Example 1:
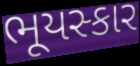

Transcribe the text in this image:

ભૂયસ્કાર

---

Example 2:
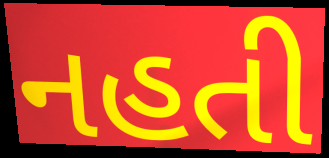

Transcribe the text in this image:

નહતી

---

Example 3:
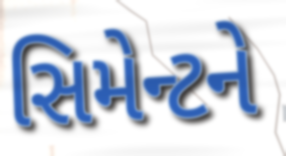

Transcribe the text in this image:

સિમેન્ટને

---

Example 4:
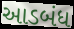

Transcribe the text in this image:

આડબંધ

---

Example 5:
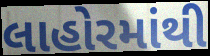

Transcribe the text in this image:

લાહોરમાંથી